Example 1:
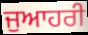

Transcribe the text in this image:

ਜੁਆਹਰੀ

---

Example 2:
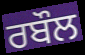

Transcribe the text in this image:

ਰਬੌਲ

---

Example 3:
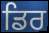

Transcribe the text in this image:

ਡਿਰ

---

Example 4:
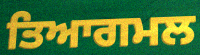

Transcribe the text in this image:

ਤਿਆਗਮਲ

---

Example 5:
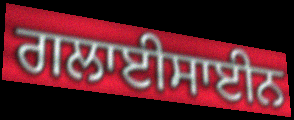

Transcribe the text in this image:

ਗਲਾਈਸਾਈਨ